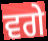
ਵਗੇ